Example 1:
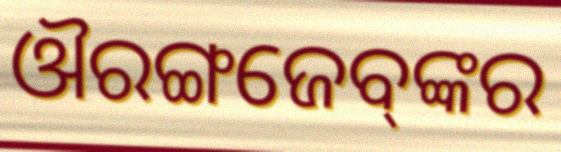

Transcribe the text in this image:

ଔରଙ୍ଗଜେବ୍‌ଙ୍କର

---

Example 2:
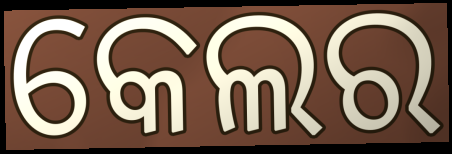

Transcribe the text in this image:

କେଲର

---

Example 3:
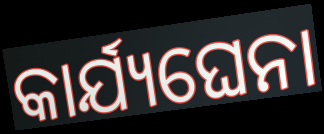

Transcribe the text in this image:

କାର୍ଯ୍ୟଘେନା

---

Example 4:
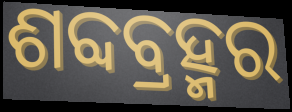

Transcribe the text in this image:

ଶବ୍ଦବ୍ରହ୍ମର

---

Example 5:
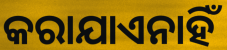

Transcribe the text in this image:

କରାଯାଏନାହିଁ